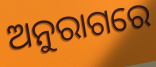
ଅନୁରାଗରେ